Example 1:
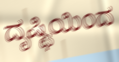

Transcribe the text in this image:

ದೃಷ್ಟಿಯಿಂದ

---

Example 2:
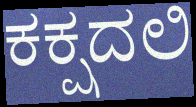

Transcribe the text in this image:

ಕಕ್ಷದಲಿ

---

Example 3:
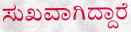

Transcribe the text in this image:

ಸುಖವಾಗಿದ್ದಾರೆ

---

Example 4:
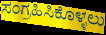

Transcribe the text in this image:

ಸಂಗ್ರಹಿಸಿಕೊಳ್ಳಲು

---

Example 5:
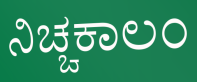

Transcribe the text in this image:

ನಿಚ್ಚಕಾಲಂ